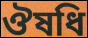
ঔষধি